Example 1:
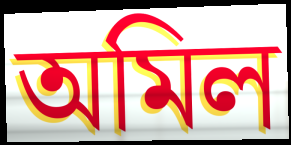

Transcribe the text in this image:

অমিল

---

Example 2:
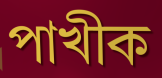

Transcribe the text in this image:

পাখীক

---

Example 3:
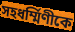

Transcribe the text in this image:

সহধর্ম্মিণীকে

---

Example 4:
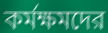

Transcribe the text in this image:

কর্মক্ষমদের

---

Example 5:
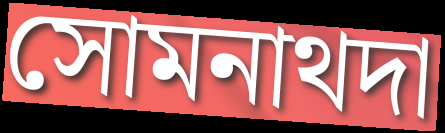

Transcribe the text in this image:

সোমনাথদা